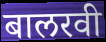
बालरवी